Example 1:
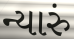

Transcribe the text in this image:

ન્યારું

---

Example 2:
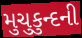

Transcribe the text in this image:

મુચુકુન્દની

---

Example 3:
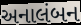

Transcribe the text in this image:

અનાલંબન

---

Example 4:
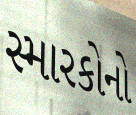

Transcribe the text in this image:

સ્મારકોનો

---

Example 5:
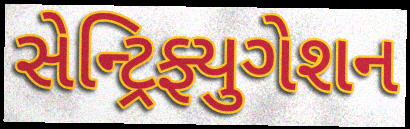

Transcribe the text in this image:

સેન્ટ્રિફ્યુગેશન